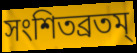
সংশিতব্রতম্